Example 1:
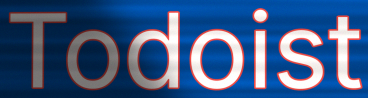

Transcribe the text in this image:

Todoist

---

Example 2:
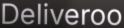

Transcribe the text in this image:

Deliveroo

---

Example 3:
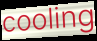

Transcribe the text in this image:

cooling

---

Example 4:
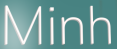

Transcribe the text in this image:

Minh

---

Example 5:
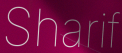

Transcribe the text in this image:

Sharif